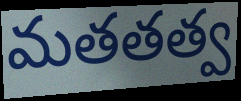
మతతత్వ